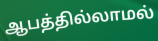
ஆபத்தில்லாமல்